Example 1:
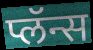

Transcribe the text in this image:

प्लॅन्स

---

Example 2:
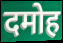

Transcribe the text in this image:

दमोह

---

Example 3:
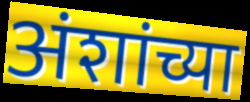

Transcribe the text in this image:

अंशांच्या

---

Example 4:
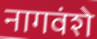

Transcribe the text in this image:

नागवंशे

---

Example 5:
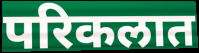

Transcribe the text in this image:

परिकलात